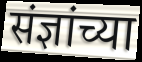
संज्ञांच्या